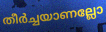
തീർച്ചയാണല്ലോ